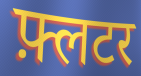
फ़्लटर